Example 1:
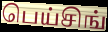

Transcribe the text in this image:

பெய்சிங்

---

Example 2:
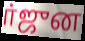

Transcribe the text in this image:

ர்ஜுன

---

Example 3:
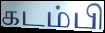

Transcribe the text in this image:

கடம்பி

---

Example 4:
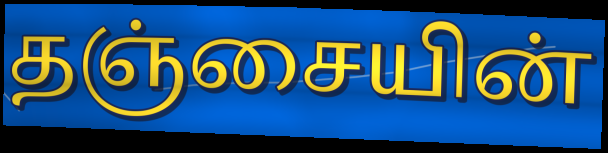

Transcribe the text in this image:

தஞ்சையின்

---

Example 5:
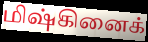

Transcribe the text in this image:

மிஷ்கினைக்